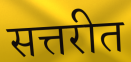
सत्तरीत